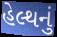
હેલ્થનું